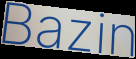
Bazin